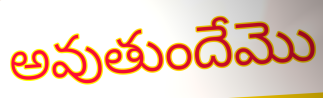
అవుతుందేమొ